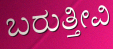
ಬರುತ್ತೀವಿ